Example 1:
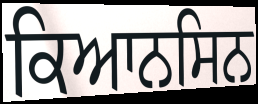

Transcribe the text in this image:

ਕਿਆਨਸਿਨ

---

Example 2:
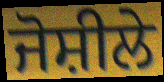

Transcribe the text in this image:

ਜੋਸ਼ੀਲੇ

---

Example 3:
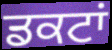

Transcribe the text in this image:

ਡਕਟਾਂ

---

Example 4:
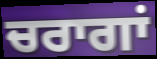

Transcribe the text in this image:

ਚਰਾਗਾਂ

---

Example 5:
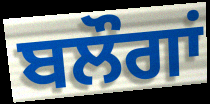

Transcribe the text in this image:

ਬਲੌਗਾਂ